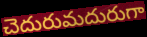
చెదురుమదురుగా